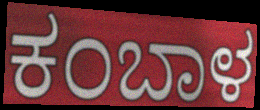
ಕಂಬಾಳ